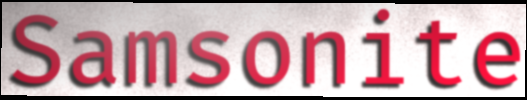
Samsonite